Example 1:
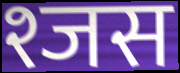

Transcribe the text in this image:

श्जस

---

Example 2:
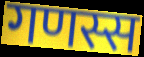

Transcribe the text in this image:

गणस्स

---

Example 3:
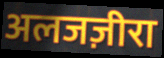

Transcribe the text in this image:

अलजज़ीरा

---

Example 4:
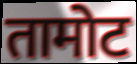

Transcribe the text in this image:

तामोट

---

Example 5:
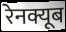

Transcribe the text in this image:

रेनक्यूब